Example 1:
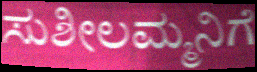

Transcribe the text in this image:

ಸುಶೀಲಮ್ಮನಿಗೆ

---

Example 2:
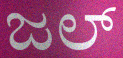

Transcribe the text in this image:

ಜಲ್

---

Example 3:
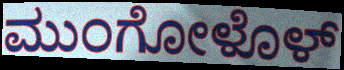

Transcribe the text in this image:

ಮುಂಗೋಳೊಳ್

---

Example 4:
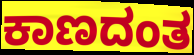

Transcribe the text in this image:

ಕಾಣದಂತ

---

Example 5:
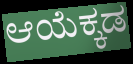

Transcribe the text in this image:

ಆಯೆಕ್ಕಡ